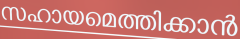
സഹായമെത്തിക്കാൻ